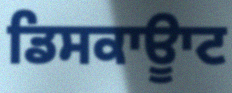
ਡਿਸਕਾਊਾਟ